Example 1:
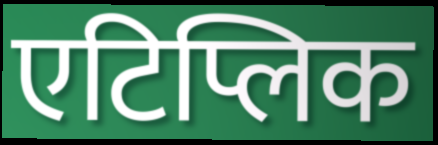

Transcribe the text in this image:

एटिप्लिक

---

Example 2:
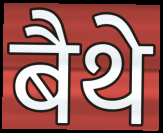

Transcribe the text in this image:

बैथे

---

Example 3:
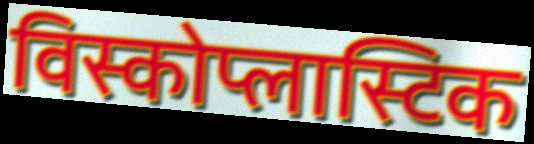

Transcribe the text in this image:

विस्कोप्लास्टिक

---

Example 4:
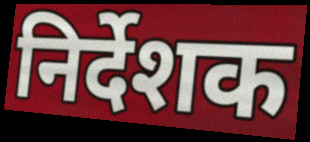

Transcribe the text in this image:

निर्देशक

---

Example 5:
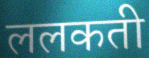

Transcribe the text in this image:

ललकती